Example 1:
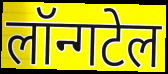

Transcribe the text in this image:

लॉन्गटेल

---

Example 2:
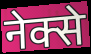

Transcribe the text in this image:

नेक्से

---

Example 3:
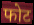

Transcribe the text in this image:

फोट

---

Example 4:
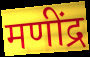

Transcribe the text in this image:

मणींद्र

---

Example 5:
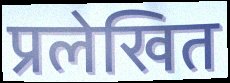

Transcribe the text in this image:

प्रलेखित